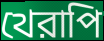
থেরাপি